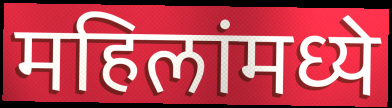
महिलांमध्ये